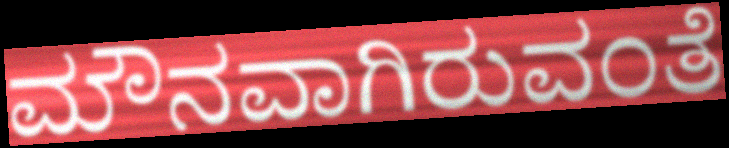
ಮೌನವಾಗಿರುವಂತೆ